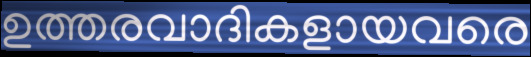
ഉത്തരവാദികളായവരെ